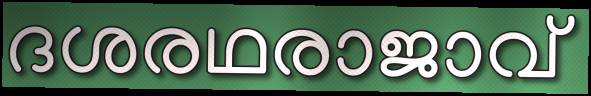
ദശരഥരാജാവ്